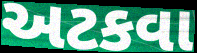
અટકવા